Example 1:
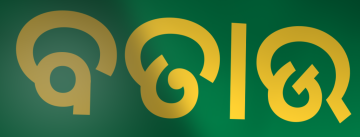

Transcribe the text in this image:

ବତାଉ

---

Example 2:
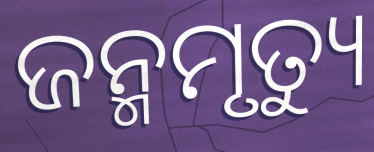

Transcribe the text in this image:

ଜନ୍ମମୃତ୍ୟୁ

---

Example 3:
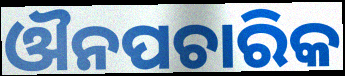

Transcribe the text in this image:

ଔନପଚାରିକ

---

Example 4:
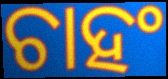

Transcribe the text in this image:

ଚାହଂ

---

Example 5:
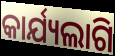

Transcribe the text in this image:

କାର୍ଯ୍ୟଲାଗି